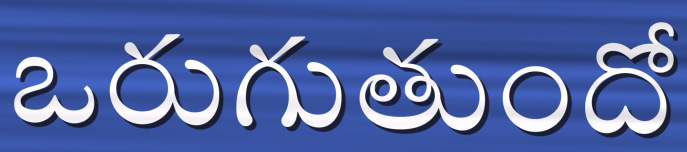
ఒరుగుతుందో